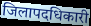
जिलापदधिकारी